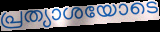
പ്രത്യാശയോടെ